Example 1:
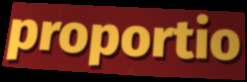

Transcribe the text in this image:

proportio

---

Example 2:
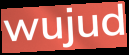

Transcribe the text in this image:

wujud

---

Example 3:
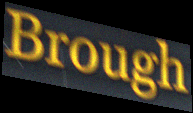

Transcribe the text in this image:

Brough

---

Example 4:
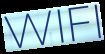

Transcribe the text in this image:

WIFI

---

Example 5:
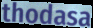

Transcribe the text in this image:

thodasa